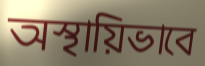
অস্থায়িভাবে